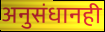
अनुसंधानही